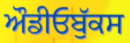
ਔਡੀਓਬੁੱਕਸ